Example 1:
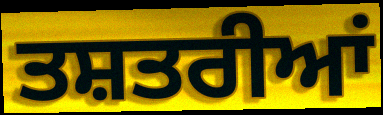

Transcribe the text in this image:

ਤਸ਼ਤਰੀਆਂ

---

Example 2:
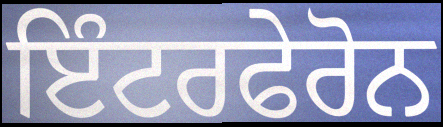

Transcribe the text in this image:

ਇੰਟਰਫੇਰੋਨ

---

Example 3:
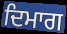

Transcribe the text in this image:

ਦਿਮਾਗ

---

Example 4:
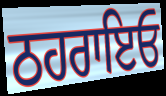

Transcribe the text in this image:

ਠਹਰਾਇਓ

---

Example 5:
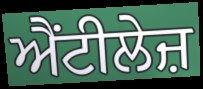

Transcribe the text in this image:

ਐਂਟੀਲੇਜ਼